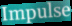
Impulse